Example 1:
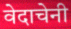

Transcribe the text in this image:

वेदाचेनी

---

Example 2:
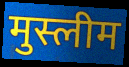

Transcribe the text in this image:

मुस्लीम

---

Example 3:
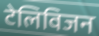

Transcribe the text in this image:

टेलिविजन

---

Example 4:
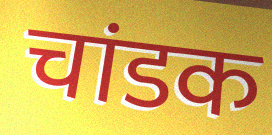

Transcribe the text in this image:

चांडक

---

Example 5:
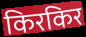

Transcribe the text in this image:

किरकिर